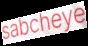
sabcheye